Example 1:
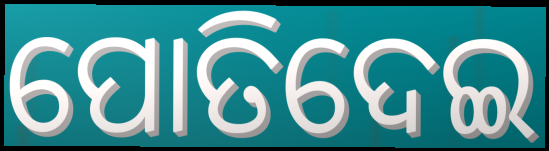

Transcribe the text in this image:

ପୋତିଦେଇ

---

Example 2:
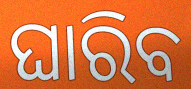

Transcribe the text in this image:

ଘାରିବ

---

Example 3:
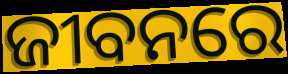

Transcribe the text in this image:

ଜୀବନରେ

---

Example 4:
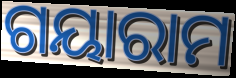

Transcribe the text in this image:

ଗୟାରାମ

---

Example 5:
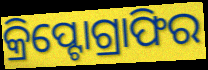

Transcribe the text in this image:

କ୍ରିପ୍ଟୋଗ୍ରାଫିର